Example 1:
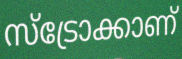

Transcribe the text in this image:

സ്ട്രോക്കാണ്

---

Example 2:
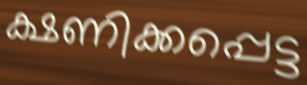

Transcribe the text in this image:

ക്ഷണിക്കപ്പെട്ട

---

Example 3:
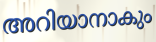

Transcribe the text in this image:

അറിയാനാകും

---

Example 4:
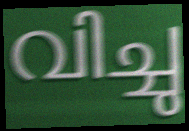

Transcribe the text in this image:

വിച്ചു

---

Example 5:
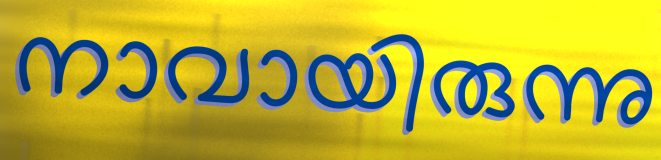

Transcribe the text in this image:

നാവായിരുന്നു